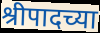
श्रीपादच्या